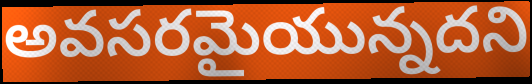
అవసరమైయున్నదని